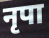
नृपा